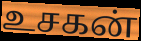
உசகன்